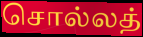
சொல்லத்